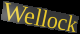
Wellock